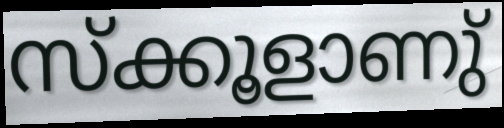
സ്ക്കൂളാണു്